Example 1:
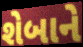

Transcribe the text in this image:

શેબાને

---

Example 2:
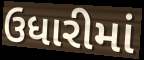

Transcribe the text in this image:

ઉધારીમાં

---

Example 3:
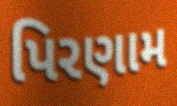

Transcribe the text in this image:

પિરણામ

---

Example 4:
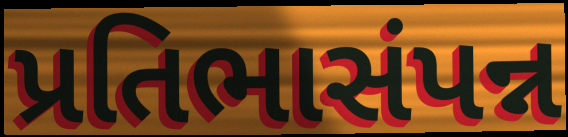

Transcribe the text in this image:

પ્રતિભાસંપન્ન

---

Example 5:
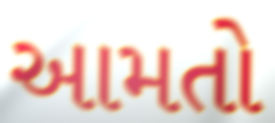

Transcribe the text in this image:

આમતો